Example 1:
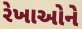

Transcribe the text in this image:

રેખાઓને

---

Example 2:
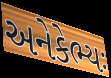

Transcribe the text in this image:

અનેકેભ્યઃ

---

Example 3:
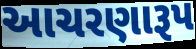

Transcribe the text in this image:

આચરણારૂપ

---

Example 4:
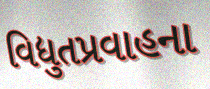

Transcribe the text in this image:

વિદ્યુતપ્રવાહના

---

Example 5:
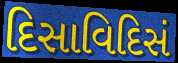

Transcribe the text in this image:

દિસાવિદિસં